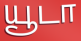
யூடா